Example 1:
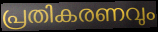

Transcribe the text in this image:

പ്രതികരണവും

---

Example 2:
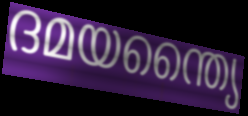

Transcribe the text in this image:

ദമയന്ത്യൈ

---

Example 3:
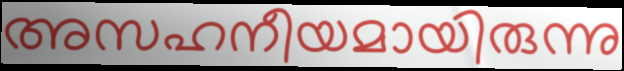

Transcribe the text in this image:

അസഹനീയമായിരുന്നു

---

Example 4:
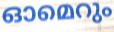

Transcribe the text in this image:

ഓമെറും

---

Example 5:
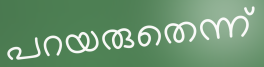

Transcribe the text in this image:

പറയരുതെന്ന്